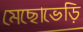
মেছোভেড়ি